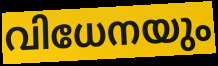
വിധേനയും